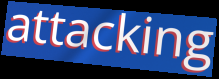
attacking